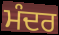
ਮੰਦਰ